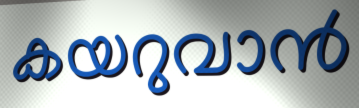
കയറുവാൻ